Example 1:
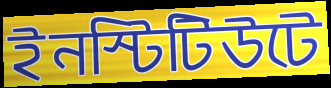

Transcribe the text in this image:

ইনস্টিটিউটে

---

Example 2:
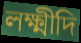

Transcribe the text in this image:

লক্ষ্মীদি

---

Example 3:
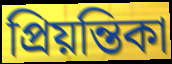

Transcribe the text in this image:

প্রিয়ন্তিকা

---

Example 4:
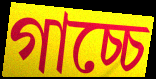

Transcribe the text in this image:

গাচ্চে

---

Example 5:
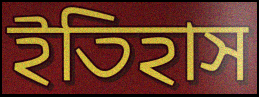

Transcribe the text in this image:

ইতিহাস